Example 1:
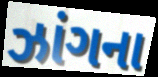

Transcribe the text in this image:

ઝાંગના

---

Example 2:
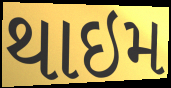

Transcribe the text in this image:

થાઇમ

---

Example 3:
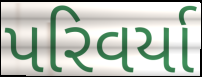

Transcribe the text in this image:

પરિવર્યા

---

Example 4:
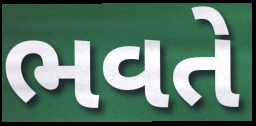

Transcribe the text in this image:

ભવતે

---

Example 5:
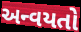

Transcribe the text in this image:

અન્વયતો